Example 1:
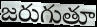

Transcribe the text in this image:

జరుగుతూ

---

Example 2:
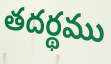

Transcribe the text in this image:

తదర్థము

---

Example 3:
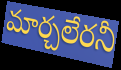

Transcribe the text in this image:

మార్చలేరనీ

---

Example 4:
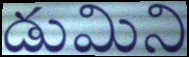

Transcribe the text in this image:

డుమిని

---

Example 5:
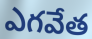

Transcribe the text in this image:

ఎగవేత